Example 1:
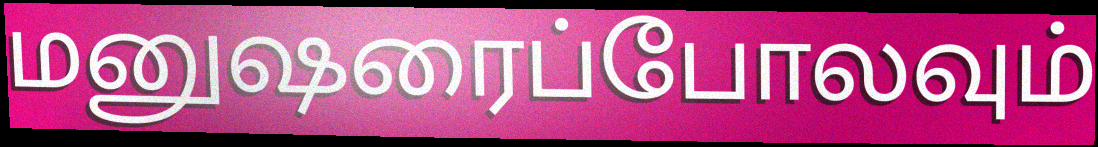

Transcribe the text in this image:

மனுஷரைப்போலவும்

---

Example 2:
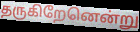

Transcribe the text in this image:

தருகிறேனென்று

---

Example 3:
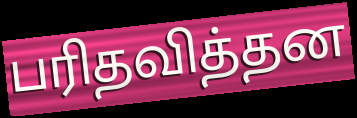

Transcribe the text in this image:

பரிதவித்தன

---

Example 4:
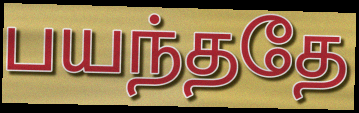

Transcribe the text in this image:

பயந்ததே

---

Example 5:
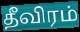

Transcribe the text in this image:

தீவிரம்